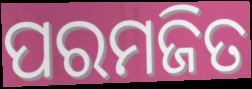
ପରମଜିତ